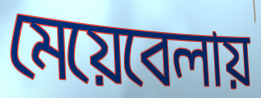
মেয়েবেলায়